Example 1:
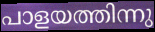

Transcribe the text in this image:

പാളയത്തിന്നു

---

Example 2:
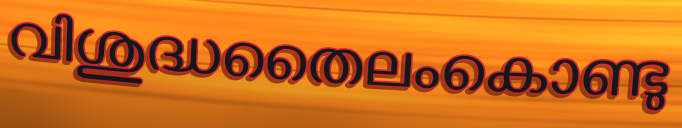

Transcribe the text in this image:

വിശുദ്ധതൈലംകൊണ്ടു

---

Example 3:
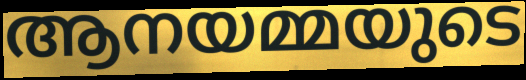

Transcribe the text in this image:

ആനയമ്മയുടെ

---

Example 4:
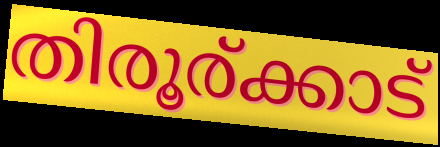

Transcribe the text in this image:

തിരൂര്ക്കാട്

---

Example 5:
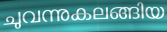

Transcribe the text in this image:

ചുവന്നുകലങ്ങിയ